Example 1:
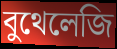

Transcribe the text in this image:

বুথেলেজি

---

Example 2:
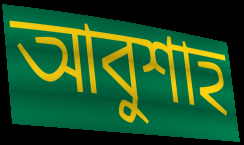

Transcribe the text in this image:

আবুশাহ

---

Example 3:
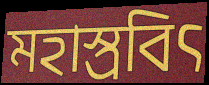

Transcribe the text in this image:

মহাস্ত্রবিৎ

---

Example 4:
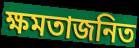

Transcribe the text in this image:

ক্ষমতাজনিত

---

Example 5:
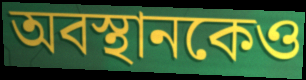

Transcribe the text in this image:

অবস্থানকেও